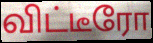
விட்டீரோ